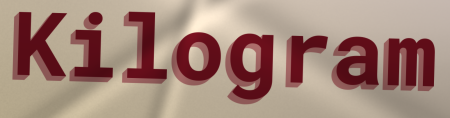
Kilogram